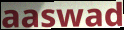
aaswad